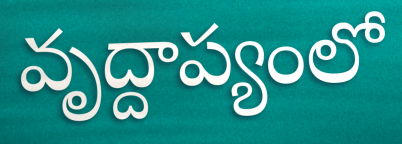
వృద్దాప్యంలో